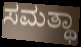
ಸಮತ್ಥಾ